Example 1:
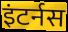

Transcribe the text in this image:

इंटर्नस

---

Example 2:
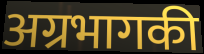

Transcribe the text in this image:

अग्रभागकी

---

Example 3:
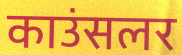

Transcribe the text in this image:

काउंसलर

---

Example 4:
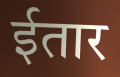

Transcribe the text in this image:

ईतार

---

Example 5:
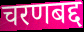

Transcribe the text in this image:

चरणबद्द